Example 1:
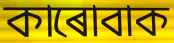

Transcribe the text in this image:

কাৰোবাক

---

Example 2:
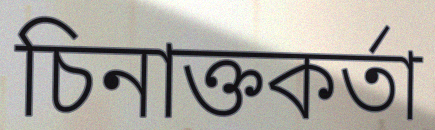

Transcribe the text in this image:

চিনাক্তকৰ্তা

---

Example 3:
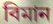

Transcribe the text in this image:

বিমান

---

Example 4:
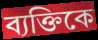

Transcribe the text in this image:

ব্যক্তিকে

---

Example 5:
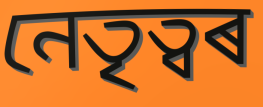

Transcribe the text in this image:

নেতৃত্বৰ